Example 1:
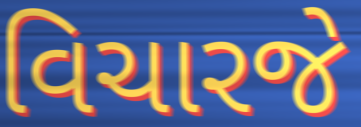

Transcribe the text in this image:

વિચારજે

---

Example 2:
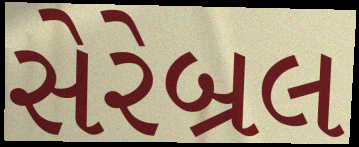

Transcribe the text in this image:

સેરેબ્રલ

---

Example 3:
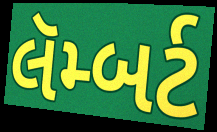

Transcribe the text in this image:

લૅમ્બર્ટ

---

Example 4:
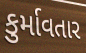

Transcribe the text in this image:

કુર્માવતાર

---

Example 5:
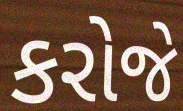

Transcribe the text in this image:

કરોજે